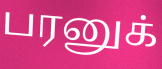
பரனுக்